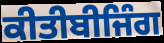
ਕੀਤੀਬੀਜਿੰਗ